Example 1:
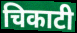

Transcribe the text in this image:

चिकाटी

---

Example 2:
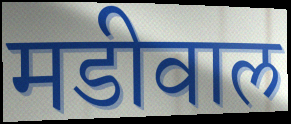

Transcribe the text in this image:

मडीवाल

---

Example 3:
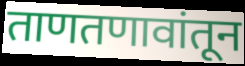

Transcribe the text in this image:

ताणतणावांतून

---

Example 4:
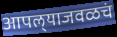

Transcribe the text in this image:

आपल्याजवळचं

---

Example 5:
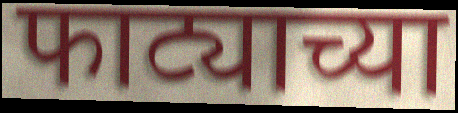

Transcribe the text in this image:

फाट्याच्या